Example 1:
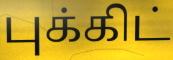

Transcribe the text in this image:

புக்கிட்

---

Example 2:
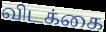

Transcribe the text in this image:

விடக்கை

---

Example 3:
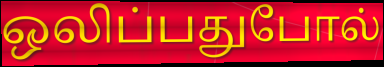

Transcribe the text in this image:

ஒலிப்பதுபோல்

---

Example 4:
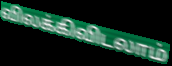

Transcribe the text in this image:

விலக்கிவிடலாம்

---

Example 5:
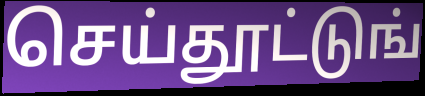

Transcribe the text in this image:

செய்தூட்டுங்